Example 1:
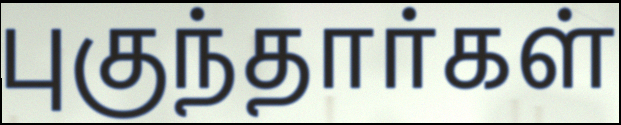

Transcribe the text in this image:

புகுந்தார்கள்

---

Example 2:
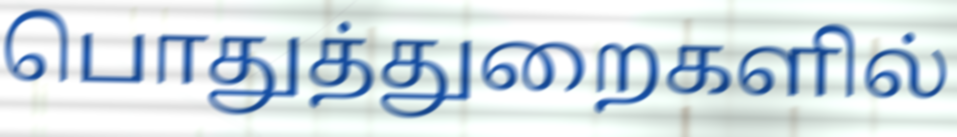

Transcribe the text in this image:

பொதுத்துறைகளில்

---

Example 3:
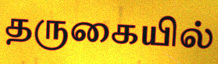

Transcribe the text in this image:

தருகையில்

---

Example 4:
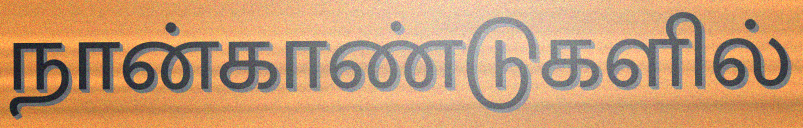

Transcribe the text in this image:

நான்காண்டுகளில்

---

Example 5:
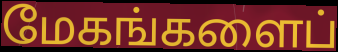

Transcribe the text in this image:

மேகங்களைப்